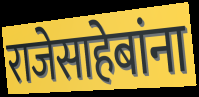
राजेसाहेबांना